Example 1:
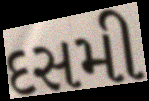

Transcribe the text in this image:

દસમી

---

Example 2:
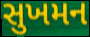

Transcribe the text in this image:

સુખમન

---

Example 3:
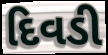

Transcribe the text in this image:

દિવડી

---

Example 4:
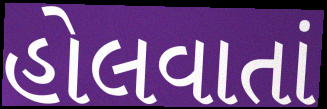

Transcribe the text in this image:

હોલવાતાં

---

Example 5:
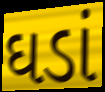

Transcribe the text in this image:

ઘડાં